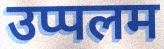
उप्पलम